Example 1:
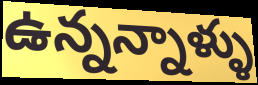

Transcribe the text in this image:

ఉన్నన్నాళ్ళు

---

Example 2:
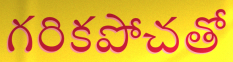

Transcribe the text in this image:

గరికపోచతో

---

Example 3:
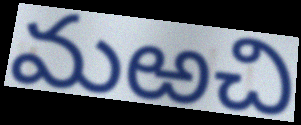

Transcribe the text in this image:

మఱచి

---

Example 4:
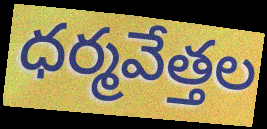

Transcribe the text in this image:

ధర్మవేత్తల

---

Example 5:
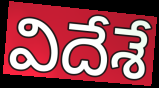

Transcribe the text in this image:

విదేశే